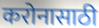
करोनासाठी